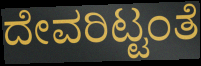
ದೇವರಿಟ್ಟಂತೆ